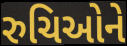
રુચિઓને